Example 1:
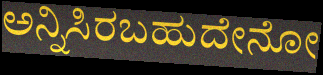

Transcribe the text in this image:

ಅನ್ನಿಸಿರಬಹುದೇನೋ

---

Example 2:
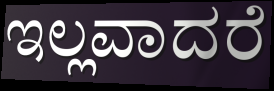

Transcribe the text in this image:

ಇಲ್ಲವಾದರೆ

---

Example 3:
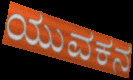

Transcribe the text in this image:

ಯುವಕನ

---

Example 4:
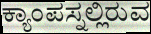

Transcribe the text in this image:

ಕ್ಯಾಂಪಸ್ನಲ್ಲಿರುವ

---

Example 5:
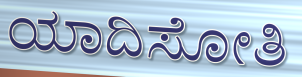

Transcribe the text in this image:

ಯಾದಿಸೋತಿ